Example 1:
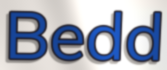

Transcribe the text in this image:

Bedd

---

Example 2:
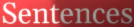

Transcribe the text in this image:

Sentences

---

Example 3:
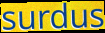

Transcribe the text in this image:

surdus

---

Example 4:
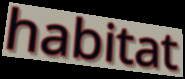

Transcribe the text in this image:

habitat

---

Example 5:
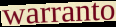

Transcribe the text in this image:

warranto